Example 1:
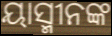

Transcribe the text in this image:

ୟାସ୍ମୀନଙ୍କ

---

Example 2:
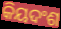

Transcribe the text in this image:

କିୟଦଂଶ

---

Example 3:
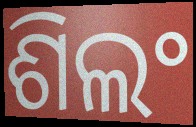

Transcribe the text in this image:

ଶିଲଂ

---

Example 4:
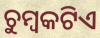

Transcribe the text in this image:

ଚୁମ୍ବକଟିଏ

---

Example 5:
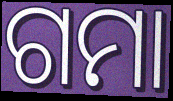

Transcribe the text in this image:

ଗମା